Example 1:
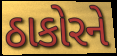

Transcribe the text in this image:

ઠાકોરને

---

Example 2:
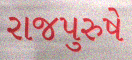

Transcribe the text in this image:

રાજપુરુષે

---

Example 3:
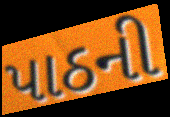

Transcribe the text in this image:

પાઠની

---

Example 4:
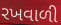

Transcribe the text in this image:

રખવાળી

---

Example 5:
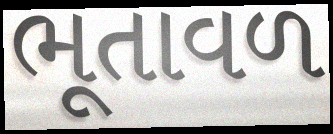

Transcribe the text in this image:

ભૂતાવળ